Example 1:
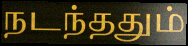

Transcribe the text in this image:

நடந்ததும்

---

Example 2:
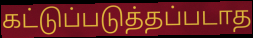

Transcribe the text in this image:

கட்டுப்படுத்தப்படாத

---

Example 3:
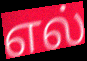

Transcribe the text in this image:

எல்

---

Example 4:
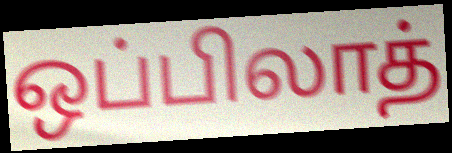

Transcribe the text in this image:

ஒப்பிலாத்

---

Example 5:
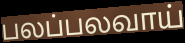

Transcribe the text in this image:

பலப்பலவாய்